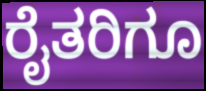
ರೈತರಿಗೂ